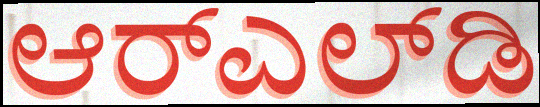
ಆರ್‌ಎಲ್‌ಡಿ